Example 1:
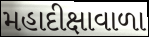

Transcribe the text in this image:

મહાદીક્ષાવાળા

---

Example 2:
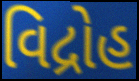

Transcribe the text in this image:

વિદ્રોહ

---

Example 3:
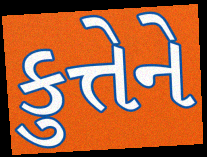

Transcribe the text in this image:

કુત્તેને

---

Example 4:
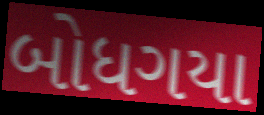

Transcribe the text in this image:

બોધગયા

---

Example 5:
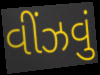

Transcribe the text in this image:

વીંઝવું